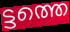
ട്ടത്തെ